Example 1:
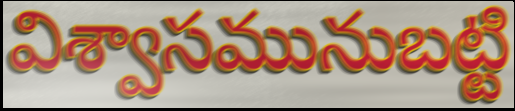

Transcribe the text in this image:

విశ్వాసమునుబట్టి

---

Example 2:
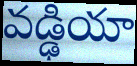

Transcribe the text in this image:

వడ్ఢియా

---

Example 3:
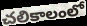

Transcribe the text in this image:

చలికాలంలో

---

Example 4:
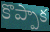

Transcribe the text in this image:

కొప్పాక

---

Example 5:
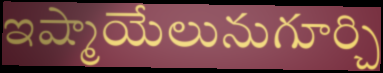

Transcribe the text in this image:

ఇష్మాయేలునుగూర్చి